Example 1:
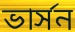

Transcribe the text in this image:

ভার্সন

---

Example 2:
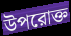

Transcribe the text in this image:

উপরোক্ত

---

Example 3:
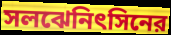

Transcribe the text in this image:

সলঝেনিৎসিনের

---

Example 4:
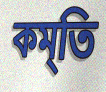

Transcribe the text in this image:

কম্‌তি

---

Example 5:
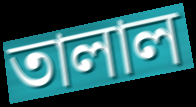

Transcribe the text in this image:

তালাল